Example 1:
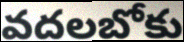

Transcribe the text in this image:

వదలబోకు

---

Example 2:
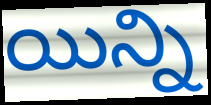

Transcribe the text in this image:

యిన్ని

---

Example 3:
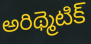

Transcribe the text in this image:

అరిథ్మెటిక్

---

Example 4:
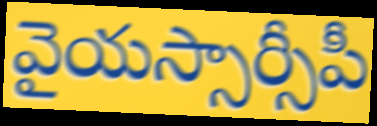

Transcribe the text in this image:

వైయస్సార్సీపీ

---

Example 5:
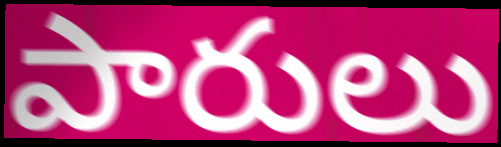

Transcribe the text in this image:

పారులు